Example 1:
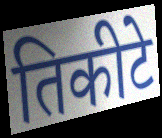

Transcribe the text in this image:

तिकीटे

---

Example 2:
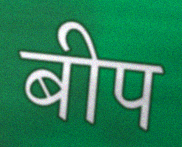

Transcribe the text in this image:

बीप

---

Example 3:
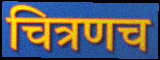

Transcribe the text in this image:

चित्रणच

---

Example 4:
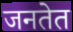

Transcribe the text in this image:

जनतेत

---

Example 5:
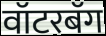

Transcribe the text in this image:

वॉटरबॅग